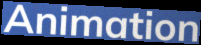
Animation